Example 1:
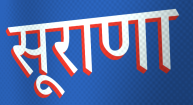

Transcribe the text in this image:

सूराणा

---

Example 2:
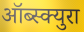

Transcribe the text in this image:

ऑब्स्क्युरा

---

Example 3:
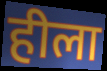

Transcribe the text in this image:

हीला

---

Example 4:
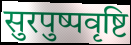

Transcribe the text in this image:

सुरपुष्पवृष्टि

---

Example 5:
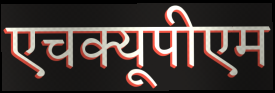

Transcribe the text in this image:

एचक्यूपीएम